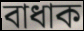
বাধাক